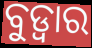
ବୁଡ୍ୱାର